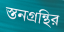
স্তনগ্রন্থির